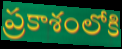
ప్రకాశంలోకి